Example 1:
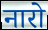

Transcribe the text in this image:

नारो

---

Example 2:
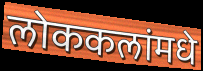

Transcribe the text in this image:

लोककलांमधे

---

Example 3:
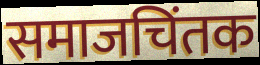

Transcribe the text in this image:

समाजचिंतक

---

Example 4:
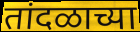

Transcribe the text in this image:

तांदळाच्या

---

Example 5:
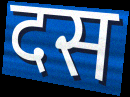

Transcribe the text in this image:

दस